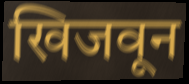
खिजवून